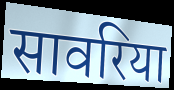
सावरिया